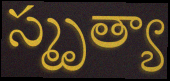
స్మృత్యా